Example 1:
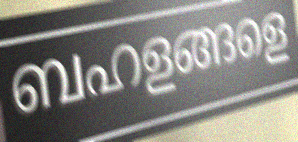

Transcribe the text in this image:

ബഹളങ്ങളെ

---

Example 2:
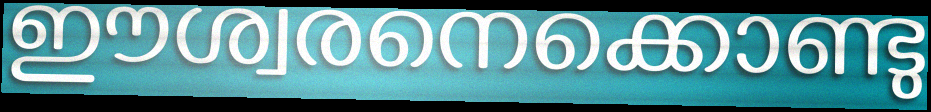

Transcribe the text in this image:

ഈശ്വരനെക്കൊണ്ടു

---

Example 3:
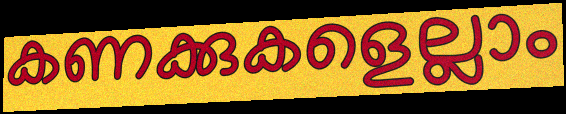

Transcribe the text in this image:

കണക്കുകളെല്ലാം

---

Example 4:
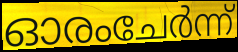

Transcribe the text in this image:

ഓരംചേർന്ന്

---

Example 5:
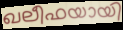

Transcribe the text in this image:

ഖലീഫയായി